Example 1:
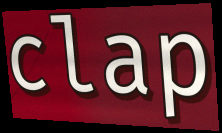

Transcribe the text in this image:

clap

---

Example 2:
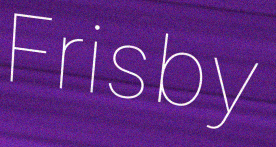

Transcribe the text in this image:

Frisby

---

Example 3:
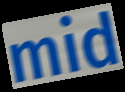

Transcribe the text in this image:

mid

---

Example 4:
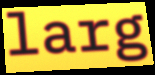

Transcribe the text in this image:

larg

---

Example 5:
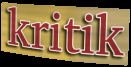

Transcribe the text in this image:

kritik